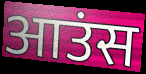
आउंस